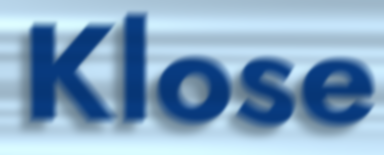
Klose